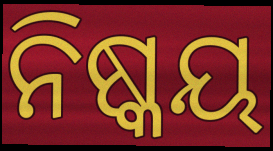
ନିଷ୍କୟ